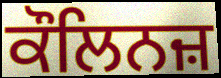
ਕੌਲਿਨਜ਼